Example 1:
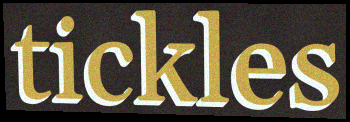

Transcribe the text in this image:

tickles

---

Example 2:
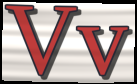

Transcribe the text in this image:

Vv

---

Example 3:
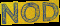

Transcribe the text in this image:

NOD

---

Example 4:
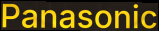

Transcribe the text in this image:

Panasonic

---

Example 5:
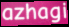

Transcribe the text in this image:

azhagi